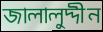
জালালুদ্দীন